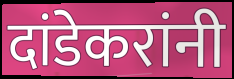
दांडेकरांनी